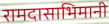
रामदासाभिमानी